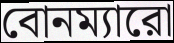
বোনম্যারো